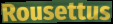
Rousettus